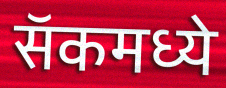
सॅकमध्ये